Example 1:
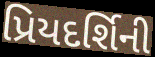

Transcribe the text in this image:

પ્રિયદર્શિની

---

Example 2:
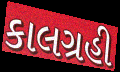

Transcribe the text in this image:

કાલગ્રહી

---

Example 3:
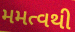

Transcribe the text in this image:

મમત્વથી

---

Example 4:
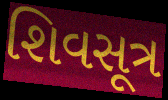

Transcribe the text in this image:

શિવસૂત્ર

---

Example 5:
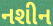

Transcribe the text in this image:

નશીન